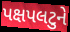
પક્ષપલટુને